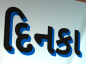
દિનકા